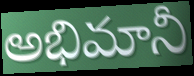
అభిమానీ